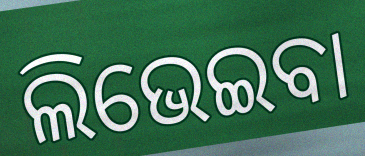
ଲିଭେଇବା